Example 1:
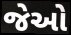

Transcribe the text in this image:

જેઓ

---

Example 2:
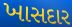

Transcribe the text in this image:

ખાસદાર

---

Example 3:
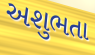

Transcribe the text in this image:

અશુભતા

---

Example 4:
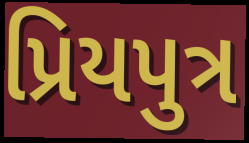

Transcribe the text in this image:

પ્રિયપુત્ર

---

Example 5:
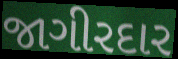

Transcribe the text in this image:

જાગીરદાર